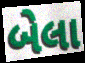
બેલા